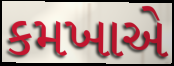
કમખાએ